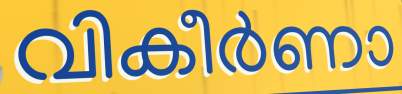
വികീർണാ